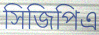
সিজিপিএ